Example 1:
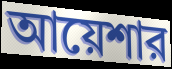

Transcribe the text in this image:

আয়েশার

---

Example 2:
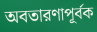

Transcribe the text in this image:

অবতারণাপূর্বক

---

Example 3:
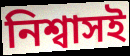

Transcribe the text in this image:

নিশ্বাসই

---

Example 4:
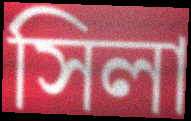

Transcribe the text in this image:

সিলা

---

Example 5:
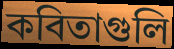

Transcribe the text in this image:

কবিতাগুলি